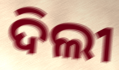
ଦିଲୀ